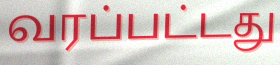
வரப்பட்டது